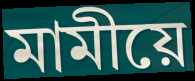
মামীয়ে